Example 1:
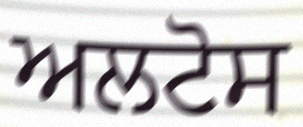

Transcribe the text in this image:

ਅਲਟੋਸ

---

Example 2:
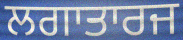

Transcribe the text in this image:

ਲਗਾਤਾਰਜ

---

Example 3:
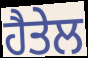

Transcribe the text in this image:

ਹੈਤੇਲ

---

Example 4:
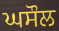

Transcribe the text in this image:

ਘਸੌਲ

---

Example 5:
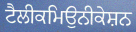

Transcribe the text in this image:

ਟੈਲੀਕਮਿਉਨੀਕੇਸ਼ਨ